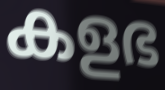
കളഭ